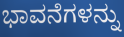
ಭಾವನೆಗಳನ್ನು